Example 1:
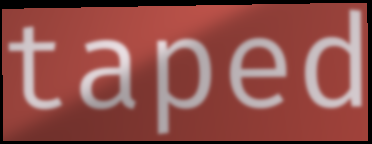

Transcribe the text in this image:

taped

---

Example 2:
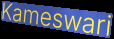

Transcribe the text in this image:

Kameswari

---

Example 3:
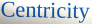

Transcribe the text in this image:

Centricity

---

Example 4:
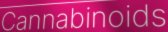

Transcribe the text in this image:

Cannabinoids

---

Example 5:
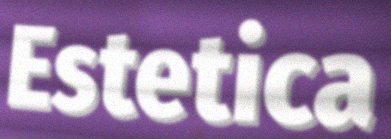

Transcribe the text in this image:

Estetica